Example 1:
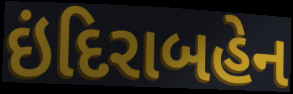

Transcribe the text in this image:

ઇંદિરાબહેન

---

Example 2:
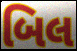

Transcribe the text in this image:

બિલ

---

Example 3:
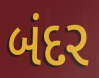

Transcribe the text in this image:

બંદર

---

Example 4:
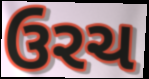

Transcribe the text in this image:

ઉરચ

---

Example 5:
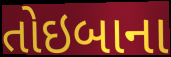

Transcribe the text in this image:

તોઇબાના